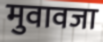
मुवावजा